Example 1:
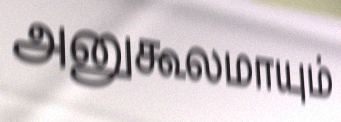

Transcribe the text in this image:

அனுகூலமாயும்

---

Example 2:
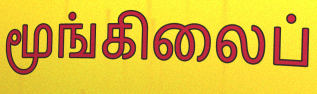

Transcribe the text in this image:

மூங்கிலைப்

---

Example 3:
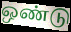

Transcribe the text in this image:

ஒண்டு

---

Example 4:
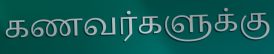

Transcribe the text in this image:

கணவர்களுக்கு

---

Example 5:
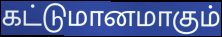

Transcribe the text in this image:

கட்டுமானமாகும்